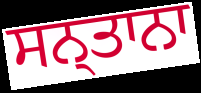
ਸਨ੍ਤਾਨਾ